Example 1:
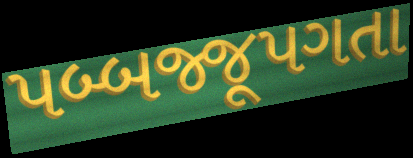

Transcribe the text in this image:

પબ્બજ્જૂપગતા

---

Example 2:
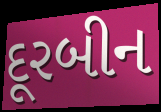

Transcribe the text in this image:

દૂરબીન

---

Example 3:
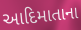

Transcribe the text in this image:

આદિમાતાના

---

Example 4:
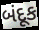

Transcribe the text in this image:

બંદૂક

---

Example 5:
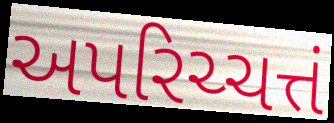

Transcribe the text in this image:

અપરિચ્ચત્તં